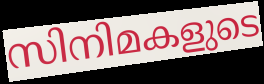
സിനിമകളുടെ